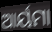
ଆର୍ୟମା